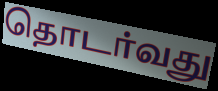
தொடர்வது